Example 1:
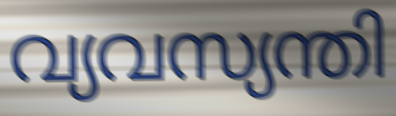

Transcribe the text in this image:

വ്യവസ്യന്തി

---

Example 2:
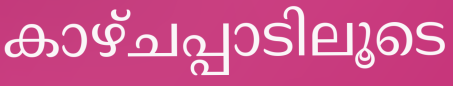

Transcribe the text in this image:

കാഴ്ചപ്പാടിലൂടെ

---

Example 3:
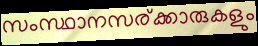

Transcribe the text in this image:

സംസ്ഥാനസര്ക്കാരുകളും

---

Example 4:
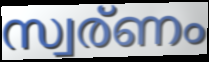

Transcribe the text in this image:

സ്വര്ണം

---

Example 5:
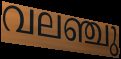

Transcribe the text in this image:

വലഞ്ചു